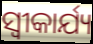
ସ୍ଵୀକାର୍ଯ୍ୟ